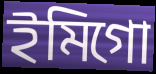
ইমিগো